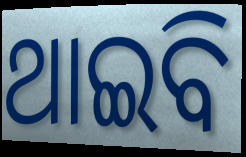
ଥାଇବି